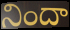
నిందా